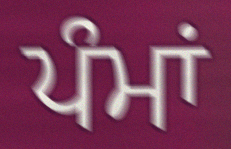
ਪੰਮਾਂ